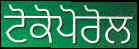
ਟੋਕੋਪੋਰੋਲ